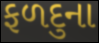
ફળદુના